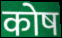
कोष